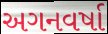
અગનવર્ષા